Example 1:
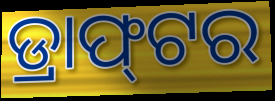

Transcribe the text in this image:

ଡ୍ରାଫ୍‌ଟର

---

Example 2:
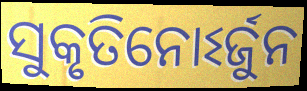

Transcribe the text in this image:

ସୁକୃତିନୋଽର୍ଜୁନ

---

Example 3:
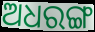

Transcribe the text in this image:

ଅଧରଙ୍ଗ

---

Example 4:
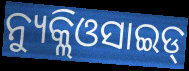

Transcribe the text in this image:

ନ୍ୟୁକ୍ଲିଓସାଇଡ୍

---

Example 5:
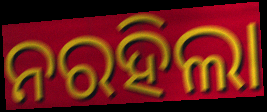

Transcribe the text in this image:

ନରହିଲା